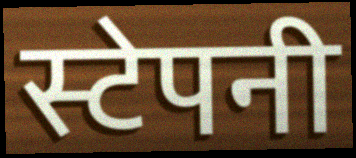
स्टेपनी